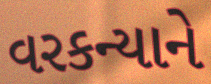
વરકન્યાને